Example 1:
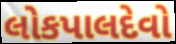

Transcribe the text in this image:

લોકપાલદેવો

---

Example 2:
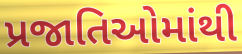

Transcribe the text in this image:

પ્રજાતિઓમાંથી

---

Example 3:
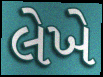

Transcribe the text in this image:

લેખે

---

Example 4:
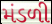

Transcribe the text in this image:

મંડળી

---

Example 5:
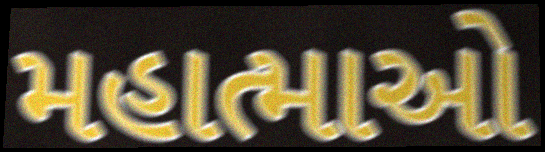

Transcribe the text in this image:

મહાત્માઓ